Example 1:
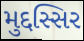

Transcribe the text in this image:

મુદ્દસ્સિર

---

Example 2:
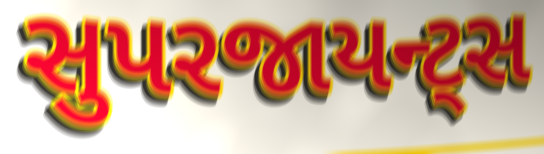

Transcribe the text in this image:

સુપરજાયન્ટ્સ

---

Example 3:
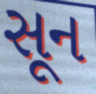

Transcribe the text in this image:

સૂન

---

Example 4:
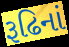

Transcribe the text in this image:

રૂઢિનાં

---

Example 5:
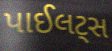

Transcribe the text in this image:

પાઈલટ્સ